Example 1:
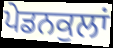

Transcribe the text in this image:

ਪੇਡਨਕੁਲਾਂ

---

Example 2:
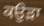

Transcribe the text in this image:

ਕਉੜਾ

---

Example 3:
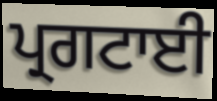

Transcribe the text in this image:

ਪ੍ਰਗਟਾਈ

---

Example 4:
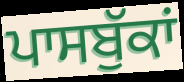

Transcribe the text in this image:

ਪਾਸਬੁੱਕਾਂ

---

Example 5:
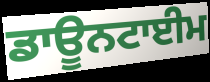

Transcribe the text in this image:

ਡਾਊਨਟਾਈਮ